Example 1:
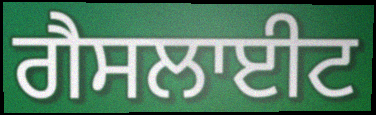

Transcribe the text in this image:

ਗੈਸਲਾਈਟ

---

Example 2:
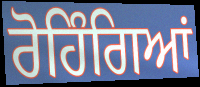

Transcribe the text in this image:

ਰੋਹਿੰਗਿਆਂ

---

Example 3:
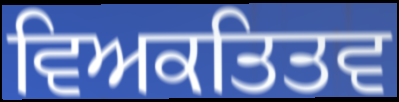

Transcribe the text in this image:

ਵਿਅਕਤਿਤਵ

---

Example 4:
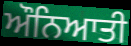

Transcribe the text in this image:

ਔਨਿਆਤੀ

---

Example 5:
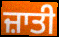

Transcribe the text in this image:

ਜ਼ਾਤੀ